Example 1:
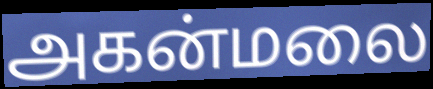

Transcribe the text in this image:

அகன்மலை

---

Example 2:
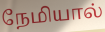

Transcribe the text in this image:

நேமியால்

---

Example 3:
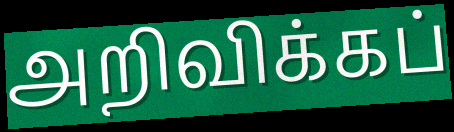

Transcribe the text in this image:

அறிவிக்கப்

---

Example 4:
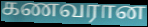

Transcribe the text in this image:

கணவரான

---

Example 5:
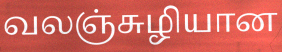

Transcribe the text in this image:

வலஞ்சுழியான